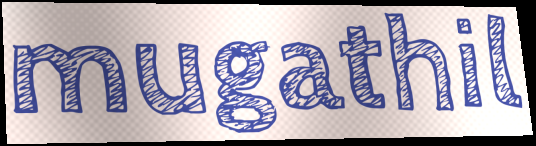
mugathil